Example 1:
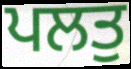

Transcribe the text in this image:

ਪਲਤੁ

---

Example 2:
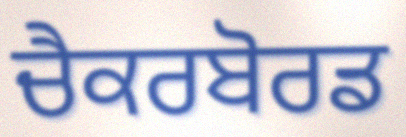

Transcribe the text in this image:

ਚੈਕਰਬੋਰਡ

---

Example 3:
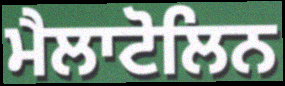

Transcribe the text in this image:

ਮੈਲਾਟੋਲਿਨ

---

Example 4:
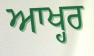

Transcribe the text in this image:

ਆਖ੍ਹਰ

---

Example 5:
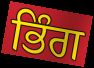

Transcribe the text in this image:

ਭਿੰਗ